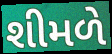
શીમળે